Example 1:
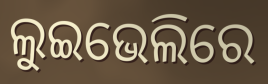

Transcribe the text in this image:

ଲୁଇଭେଲିରେ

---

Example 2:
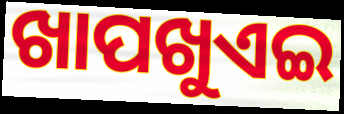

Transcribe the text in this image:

ଖାପଖୁଏଇ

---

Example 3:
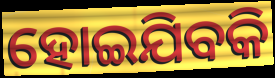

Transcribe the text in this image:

ହୋଇଯିବକି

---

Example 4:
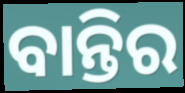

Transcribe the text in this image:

ବାନ୍ତିର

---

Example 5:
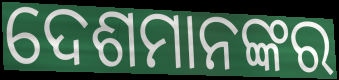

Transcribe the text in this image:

ଦେଶମାନଙ୍କର